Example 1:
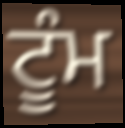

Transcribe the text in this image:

ਟੂੰਮ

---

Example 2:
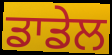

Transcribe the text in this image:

ਡਾਡੇਲ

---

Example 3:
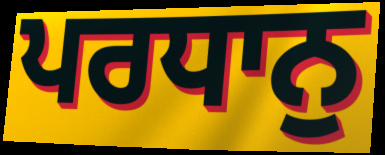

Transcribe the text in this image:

ਪਰਧਾਨੁ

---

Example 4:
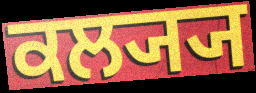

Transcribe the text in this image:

ਕਲ੍ਯ੍ਯ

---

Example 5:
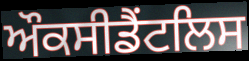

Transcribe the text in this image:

ਔਕਸੀਡੈਂਟਲਿਸ